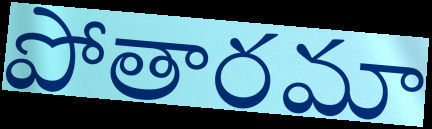
పోతారమా